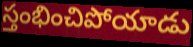
స్తంభించిపోయాడు